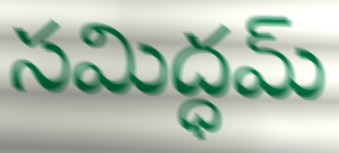
సమిద్ధమ్